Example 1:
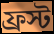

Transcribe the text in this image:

ফ্রস্ট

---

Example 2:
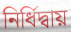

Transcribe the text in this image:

নির্ধিদ্বায়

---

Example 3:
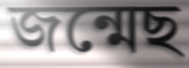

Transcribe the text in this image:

জন্মেছ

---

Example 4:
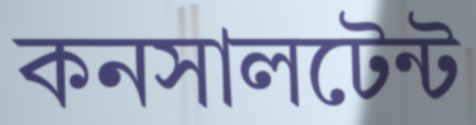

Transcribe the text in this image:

কনসালটেন্ট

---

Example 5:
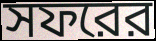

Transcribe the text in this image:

সফরের